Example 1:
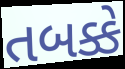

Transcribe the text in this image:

તબક્કે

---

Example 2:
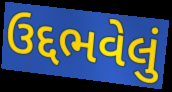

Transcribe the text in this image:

ઉદ્દભવેલું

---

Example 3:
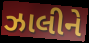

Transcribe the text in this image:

ઝાલીને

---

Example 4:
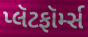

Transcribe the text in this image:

પ્લૅટફૉર્મ્સ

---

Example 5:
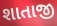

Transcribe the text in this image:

શાતાજી